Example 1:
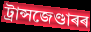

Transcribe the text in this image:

ট্ৰান্সজেণ্ডাৰৰ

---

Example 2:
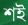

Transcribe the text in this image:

শই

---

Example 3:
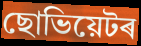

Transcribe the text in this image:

ছোভিয়েটৰ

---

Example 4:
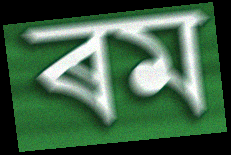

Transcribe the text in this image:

ৰম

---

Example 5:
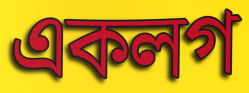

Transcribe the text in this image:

একলগ